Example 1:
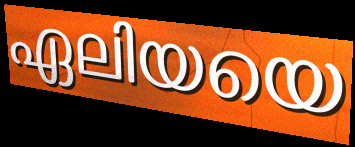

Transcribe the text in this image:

ഏലിയയെ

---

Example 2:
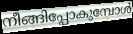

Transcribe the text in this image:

നീങ്ങിപ്പോകുമ്പോൾ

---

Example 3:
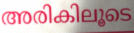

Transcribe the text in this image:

അരികിലൂടെ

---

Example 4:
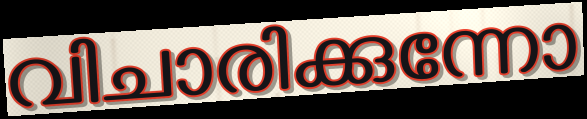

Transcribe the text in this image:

വിചാരിക്കുന്നോ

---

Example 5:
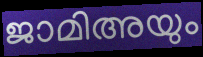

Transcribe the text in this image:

ജാമിഅയും